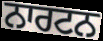
ਨਾਰਟਨ